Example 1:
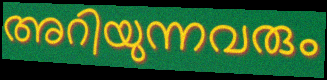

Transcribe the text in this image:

അറിയുന്നവരും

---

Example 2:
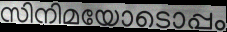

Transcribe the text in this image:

സിനിമയോടൊപ്പം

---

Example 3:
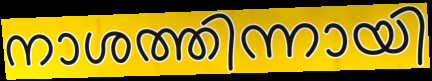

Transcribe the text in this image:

നാശത്തിന്നായി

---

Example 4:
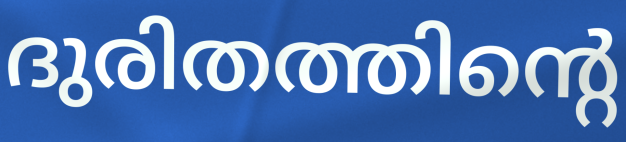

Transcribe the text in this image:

ദുരിതത്തിന്റെ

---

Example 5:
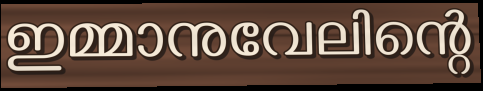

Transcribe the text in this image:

ഇമ്മാനുവേലിന്റെ